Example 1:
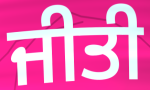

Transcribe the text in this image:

ਜੀਤੀ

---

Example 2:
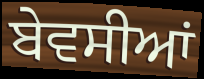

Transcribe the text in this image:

ਬੇਵਸੀਆਂ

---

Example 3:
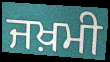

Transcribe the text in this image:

ਜਖ਼ਮੀ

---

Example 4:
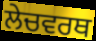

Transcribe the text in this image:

ਲੇਚਵਰਥ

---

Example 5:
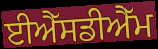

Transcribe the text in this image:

ਈਐੱਸਡੀਐੱਮ